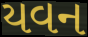
યવન